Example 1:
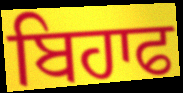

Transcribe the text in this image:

ਬਿਹਾਫ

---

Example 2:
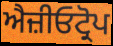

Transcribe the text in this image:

ਐਜ਼ੀਓਟ੍ਰੋਪ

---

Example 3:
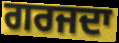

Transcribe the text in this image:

ਗਰਜਦਾ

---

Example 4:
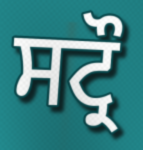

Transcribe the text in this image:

ਸਟ੍ਰੌ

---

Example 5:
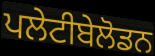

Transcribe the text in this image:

ਪਲੇਟੀਬੇਲੋਡਨ